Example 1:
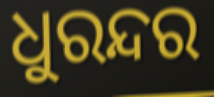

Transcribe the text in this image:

ଧୁରନ୍ଦର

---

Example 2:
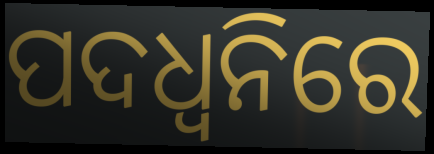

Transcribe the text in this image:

ପଦଧ୍ୱନିରେ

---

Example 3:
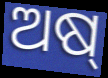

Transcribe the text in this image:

ଅଷ୍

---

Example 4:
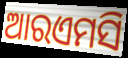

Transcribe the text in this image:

ଆରଏମସି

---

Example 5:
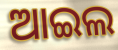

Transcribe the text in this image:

ଆଇଲ